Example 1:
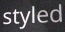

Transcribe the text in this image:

styled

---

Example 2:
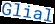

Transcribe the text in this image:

Glial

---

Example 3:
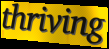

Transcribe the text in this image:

thriving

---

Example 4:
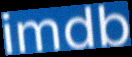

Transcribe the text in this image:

imdb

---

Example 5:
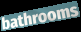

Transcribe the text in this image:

bathrooms